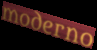
moderno